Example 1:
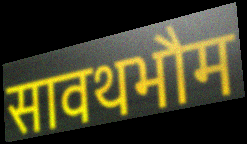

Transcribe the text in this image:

सावथभौम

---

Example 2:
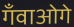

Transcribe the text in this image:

गँवाओगे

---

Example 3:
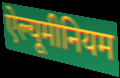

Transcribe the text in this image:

ऐल्यूमीनियम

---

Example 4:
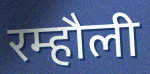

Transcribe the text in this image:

रम्हौली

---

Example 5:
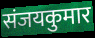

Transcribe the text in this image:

संजयकुमार